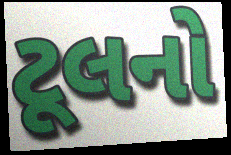
ટૂલનો